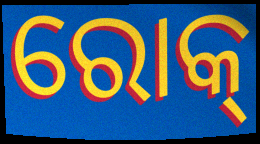
ରୋକ୍